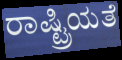
ರಾಷ್ಟ್ರಿಯತೆ